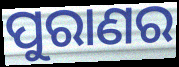
ପୁରାଣର